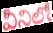
వీనిలోఁ